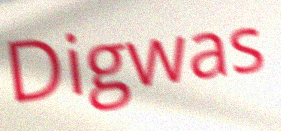
Digwas